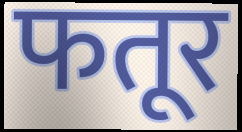
फतूर